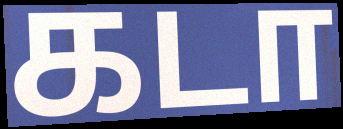
கடா